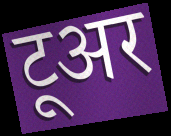
टूअर